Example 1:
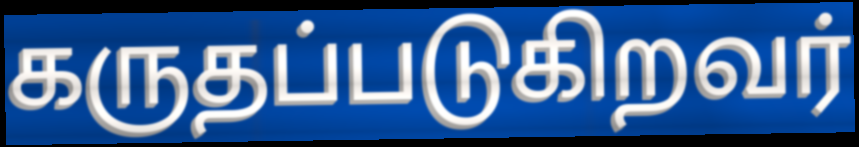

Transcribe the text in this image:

கருதப்படுகிறவர்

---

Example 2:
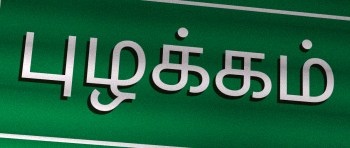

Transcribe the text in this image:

புழக்கம்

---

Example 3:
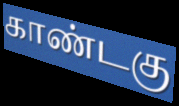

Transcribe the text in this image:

காண்டகு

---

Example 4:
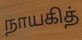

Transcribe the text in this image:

நாயகித்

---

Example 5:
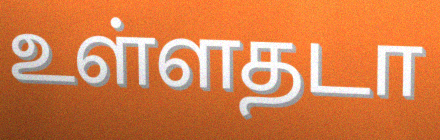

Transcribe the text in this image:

உள்ளதடா